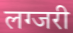
लग्‍जरी